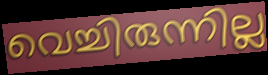
വെച്ചിരുന്നില്ല